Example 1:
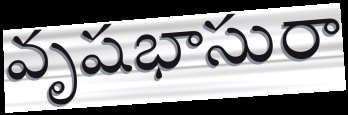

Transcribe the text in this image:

వృషభాసురా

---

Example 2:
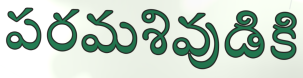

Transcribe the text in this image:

పరమశివుడికి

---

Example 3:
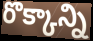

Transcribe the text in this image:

రొక్కాన్ని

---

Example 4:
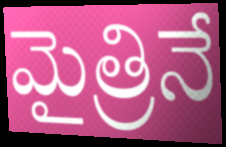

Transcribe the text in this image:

మైత్రినే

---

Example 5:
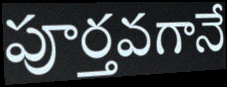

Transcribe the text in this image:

పూర్తవగానే